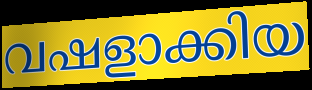
വഷളാക്കിയ